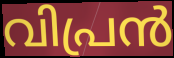
വിപ്രൻ